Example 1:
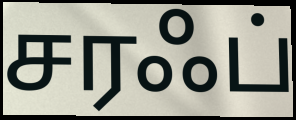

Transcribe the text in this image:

சரஃப்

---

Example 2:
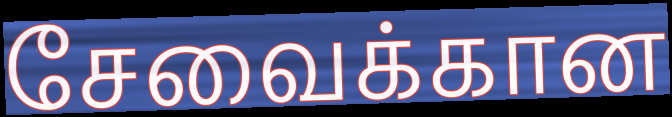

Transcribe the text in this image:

சேவைக்கான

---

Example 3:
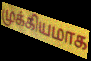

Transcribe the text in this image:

முக்கியமாக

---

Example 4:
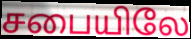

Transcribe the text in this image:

சபையிலே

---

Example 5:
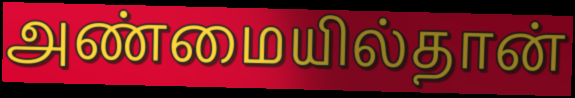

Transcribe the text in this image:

அண்மையில்தான்